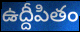
ఉద్దీపితం